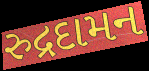
રુદ્રદામન